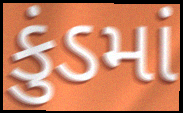
કુંડમાં